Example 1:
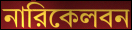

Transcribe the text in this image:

নারিকেলবন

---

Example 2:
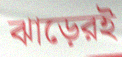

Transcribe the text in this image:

ঝাড়েরই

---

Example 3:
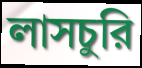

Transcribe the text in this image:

লাসচুরি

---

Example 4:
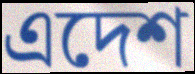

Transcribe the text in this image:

এদেশ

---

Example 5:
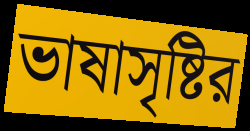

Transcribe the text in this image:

ভাষাসৃষ্টির